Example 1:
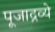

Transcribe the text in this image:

पूजाद्रव्ये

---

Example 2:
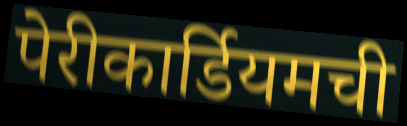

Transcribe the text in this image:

पेरीकार्डियमची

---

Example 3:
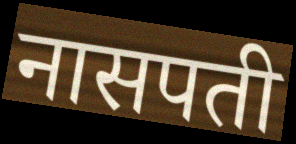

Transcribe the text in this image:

नासपती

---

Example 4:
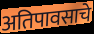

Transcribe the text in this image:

अतिपावसाचे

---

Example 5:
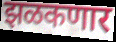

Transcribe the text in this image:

झळकणार